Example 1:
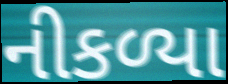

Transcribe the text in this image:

નીકળ્યા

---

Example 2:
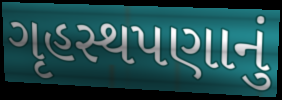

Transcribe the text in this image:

ગૃહસ્થપણાનું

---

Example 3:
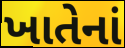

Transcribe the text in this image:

ખાતેનાં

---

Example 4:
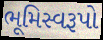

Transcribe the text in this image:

ભૂમિસ્વરૂપો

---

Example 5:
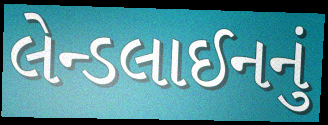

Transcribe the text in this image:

લેન્ડલાઈનનું